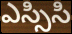
ఎస్సిసి